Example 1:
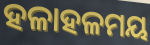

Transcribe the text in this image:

ହଳାହଳମୟ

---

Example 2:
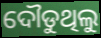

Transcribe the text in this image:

ଦୌଡୁଥିଲୁ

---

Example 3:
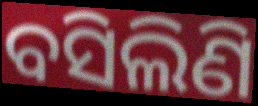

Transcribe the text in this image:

ବସିଲିଣି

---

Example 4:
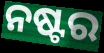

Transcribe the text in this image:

ନଷ୍ଟର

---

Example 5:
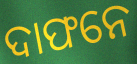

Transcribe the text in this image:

ଦାଫନେ